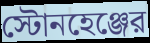
স্টোনহেঞ্জের